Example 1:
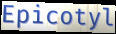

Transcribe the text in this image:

Epicotyl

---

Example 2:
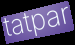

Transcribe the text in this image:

tatpar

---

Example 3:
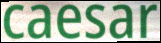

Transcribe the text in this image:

caesar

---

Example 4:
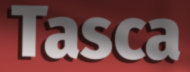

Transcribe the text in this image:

Tasca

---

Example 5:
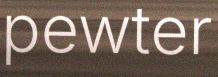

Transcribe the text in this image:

pewter